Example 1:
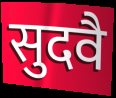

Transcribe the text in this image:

सुदवै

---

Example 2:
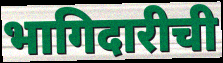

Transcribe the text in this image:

भागिदारीची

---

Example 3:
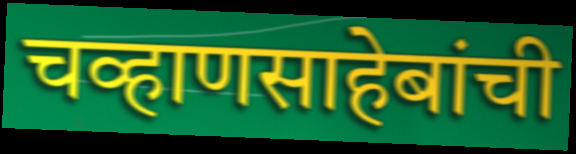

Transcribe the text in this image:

चव्हाणसाहेबांची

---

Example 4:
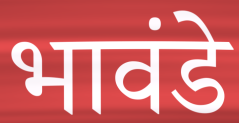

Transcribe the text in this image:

भावंडे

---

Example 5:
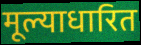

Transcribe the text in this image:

मूल्याधारित